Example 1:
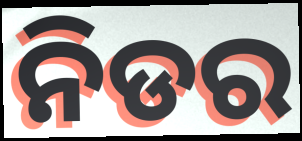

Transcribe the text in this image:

ନିଡର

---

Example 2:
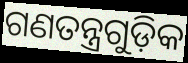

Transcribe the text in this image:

ଗଣତନ୍ତ୍ରଗୁଡ଼ିକ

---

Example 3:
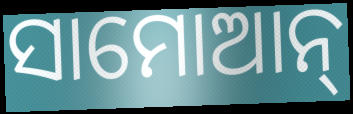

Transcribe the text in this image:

ସାମୋଆନ୍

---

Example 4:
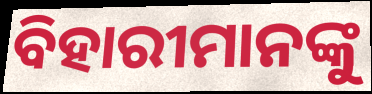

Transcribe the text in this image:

ବିହାରୀମାନଙ୍କୁ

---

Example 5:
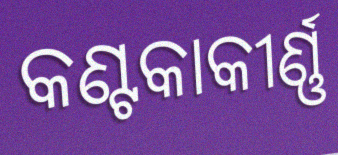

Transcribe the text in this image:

କଣ୍ଟକାକୀର୍ଣ୍ଣ